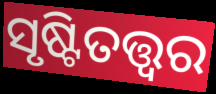
ସୃଷ୍ଟିତତ୍ତ୍ୱର